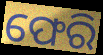
ଫେରି